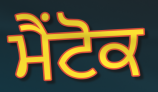
ਮੈਂਟੋਕ